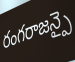
రంగరాజన్పై